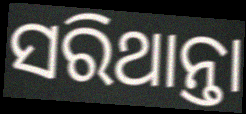
ସରିଥାନ୍ତା